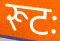
रूटः